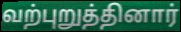
வற்புறுத்தினார்